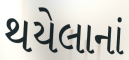
થયેલાનાં